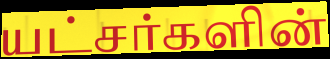
யட்சர்களின்